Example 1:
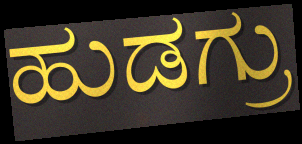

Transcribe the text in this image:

ಹುಡಗ್ರು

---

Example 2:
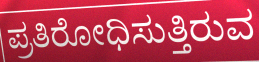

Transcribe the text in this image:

ಪ್ರತಿರೋಧಿಸುತ್ತಿರುವ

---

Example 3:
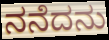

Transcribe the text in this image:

ನನೆದನು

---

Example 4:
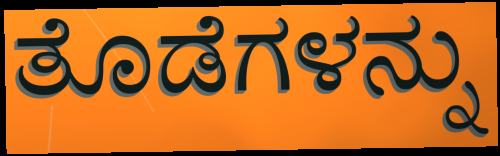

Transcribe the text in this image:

ತೊಡೆಗಳನ್ನು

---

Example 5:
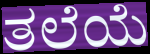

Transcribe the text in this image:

ತಲೆಯೆ